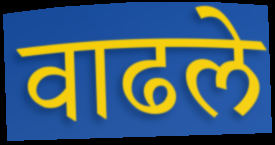
वाढले